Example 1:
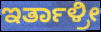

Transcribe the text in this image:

ಇರ್ತಾಳ್ರೀ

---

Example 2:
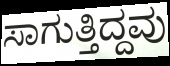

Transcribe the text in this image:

ಸಾಗುತ್ತಿದ್ದವು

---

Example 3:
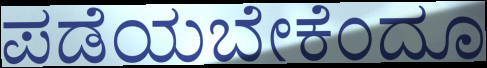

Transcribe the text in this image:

ಪಡೆಯಬೇಕೆಂದೂ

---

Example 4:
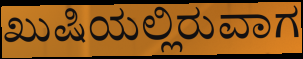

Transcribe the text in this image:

ಖುಷಿಯಲ್ಲಿರುವಾಗ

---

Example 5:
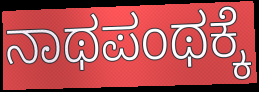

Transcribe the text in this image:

ನಾಥಪಂಥಕ್ಕೆ